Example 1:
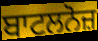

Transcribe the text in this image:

ਬਾਟਲਨੋਜ਼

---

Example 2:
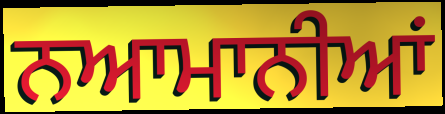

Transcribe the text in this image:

ਨਆਮਾਨੀਆਂ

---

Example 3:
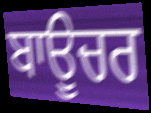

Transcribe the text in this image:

ਬਾਊਚਰ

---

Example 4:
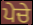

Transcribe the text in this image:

ਪੇਚੇ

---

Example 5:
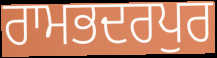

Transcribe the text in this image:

ਰਾਮਭਦਰਪੁਰ